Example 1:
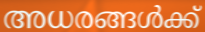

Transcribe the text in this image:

അധരങ്ങൾക്ക്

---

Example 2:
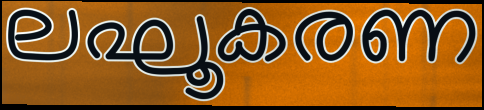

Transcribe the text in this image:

ലഘൂകരണ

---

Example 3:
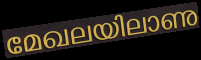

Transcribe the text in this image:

മേഖലയിലാണു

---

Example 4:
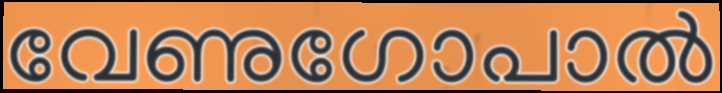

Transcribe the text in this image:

വേണുഗോപാൽ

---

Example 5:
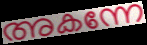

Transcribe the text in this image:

അകന്നേ